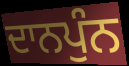
ਦਾਨਪੁੰਨ